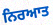
ਨਿਰਆਤ